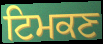
ਟਿਮਕਣ